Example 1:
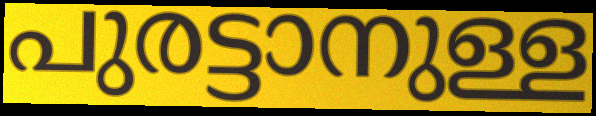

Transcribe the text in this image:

പുരട്ടാനുള്ള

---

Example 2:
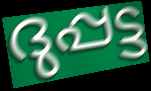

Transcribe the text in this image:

ദുപ്പട്ട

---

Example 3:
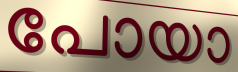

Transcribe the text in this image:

പോയാ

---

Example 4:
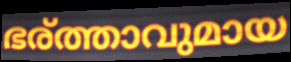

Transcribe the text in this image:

ഭര്ത്താവുമായ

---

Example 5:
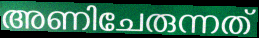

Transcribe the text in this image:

അണിചേരുന്നത്